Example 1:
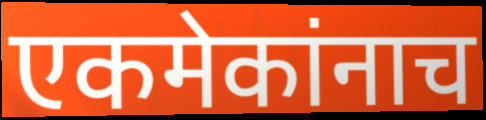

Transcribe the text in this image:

एकमेकांनाच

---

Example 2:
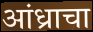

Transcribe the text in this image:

आंध्राचा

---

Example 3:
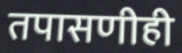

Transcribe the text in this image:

तपासणीही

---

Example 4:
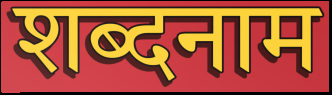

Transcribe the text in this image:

शब्दनाम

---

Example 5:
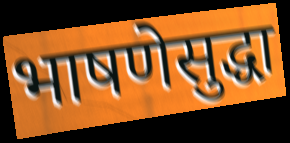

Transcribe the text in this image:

भाषणेसुद्धा